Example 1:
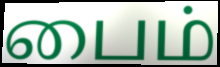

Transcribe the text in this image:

பைம்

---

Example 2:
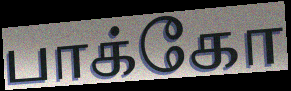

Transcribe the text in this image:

பாக்கோ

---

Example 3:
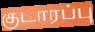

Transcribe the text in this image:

குடாரப்பு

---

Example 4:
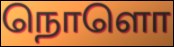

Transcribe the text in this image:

நொளொ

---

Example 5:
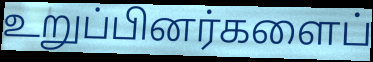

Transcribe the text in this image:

உறுப்பினர்களைப்